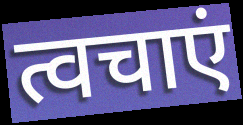
त्वचाएं